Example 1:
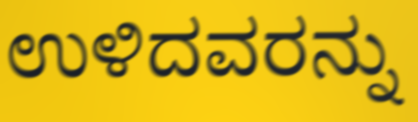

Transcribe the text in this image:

ಉಳಿದವರನ್ನು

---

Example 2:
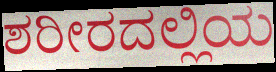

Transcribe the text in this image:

ಶರೀರದಲ್ಲಿಯ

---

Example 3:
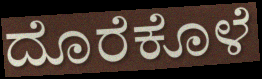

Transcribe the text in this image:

ದೊರೆಕೊಳೆ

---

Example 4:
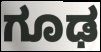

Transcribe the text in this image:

ಗೂಢ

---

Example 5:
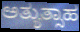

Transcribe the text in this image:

ಅತ್ಯುತ್ಸಾಹ